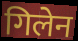
गिलेन